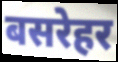
बसरेहर